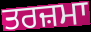
ਤਰਜ਼ਮਾ